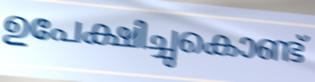
ഉപേക്ഷിച്ചുകൊണ്ട്